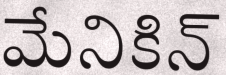
మేనికిన్